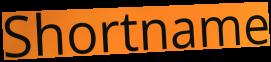
Shortname